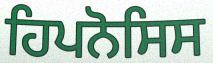
ਹਿਪਨੋਸਿਸ